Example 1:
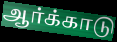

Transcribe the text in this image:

ஆர்க்காடு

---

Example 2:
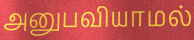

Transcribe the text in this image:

அனுபவியாமல்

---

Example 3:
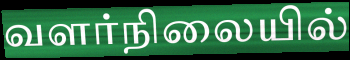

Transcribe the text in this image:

வளர்நிலையில்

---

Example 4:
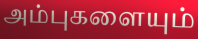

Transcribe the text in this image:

அம்புகளையும்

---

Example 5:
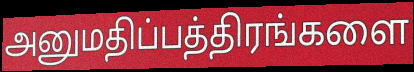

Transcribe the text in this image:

அனுமதிப்பத்திரங்களை